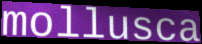
mollusca